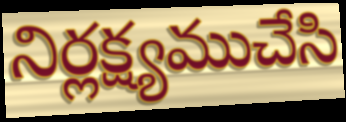
నిర్లక్ష్యముచేసి